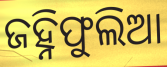
ଜହ୍ନିଫୁଲିଆ